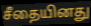
சீதையினது